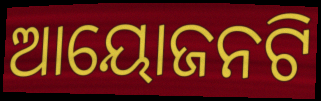
ଆୟୋଜନଟି